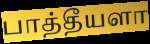
பாத்தீயளா